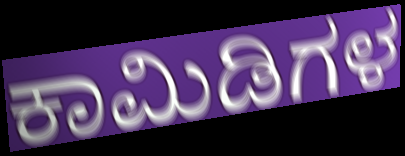
ಕಾಮಿಡಿಗಳ